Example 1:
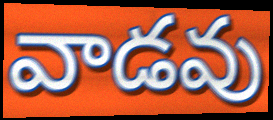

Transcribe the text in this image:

వాడవు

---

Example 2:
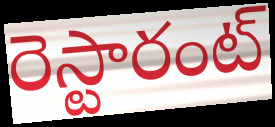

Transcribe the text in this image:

రెస్టారంట్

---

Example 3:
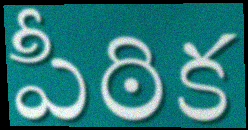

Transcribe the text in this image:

పీఠిక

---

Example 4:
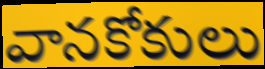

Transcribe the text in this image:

వానకోకులు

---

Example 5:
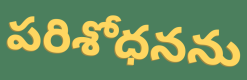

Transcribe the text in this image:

పరిశోధనను